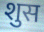
शुस